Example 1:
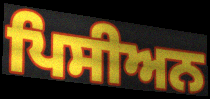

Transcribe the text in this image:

ਪਿਸੀਅਨ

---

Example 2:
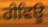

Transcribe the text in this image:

ਰੀਵਿਊ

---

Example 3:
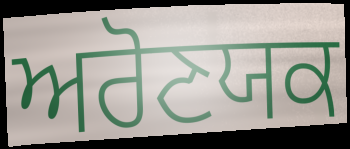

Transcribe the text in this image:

ਅਰੋਣਯਕ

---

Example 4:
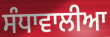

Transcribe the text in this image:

ਸੰਧਾਵਾਲੀਆ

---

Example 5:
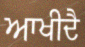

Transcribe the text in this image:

ਆਖੀਦੈ